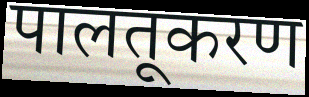
पालतूकरण